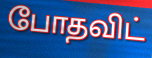
போதவிட்